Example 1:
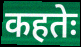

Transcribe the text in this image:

कहतेः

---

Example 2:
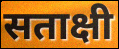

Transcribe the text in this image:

सताक्षी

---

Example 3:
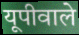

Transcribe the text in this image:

यूपीवाले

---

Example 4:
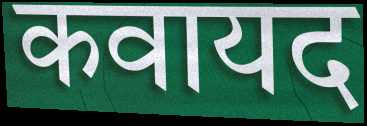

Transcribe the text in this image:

कवायद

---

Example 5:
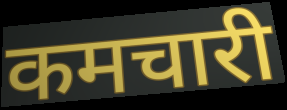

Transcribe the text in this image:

कमचारी